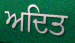
ਅਦਿਤ